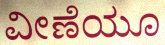
ವೀಣೆಯೂ